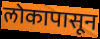
लोकापासून